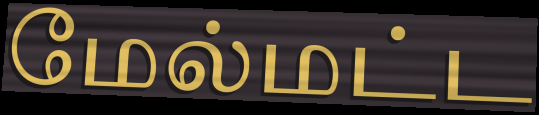
மேல்மட்ட